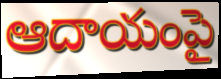
ఆదాయంపై